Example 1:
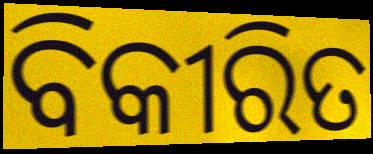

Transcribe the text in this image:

ବିକୀରିତ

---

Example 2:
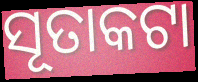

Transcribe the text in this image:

ସୂତାକଟା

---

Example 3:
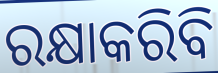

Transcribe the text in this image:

ରକ୍ଷାକରିବି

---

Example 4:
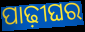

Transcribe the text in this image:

ପାଢ଼ୀଘର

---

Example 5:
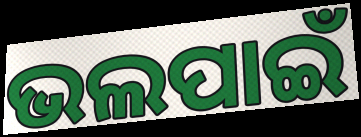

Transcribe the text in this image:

ଭଲପାଇଁ